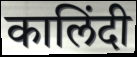
कालिंदी